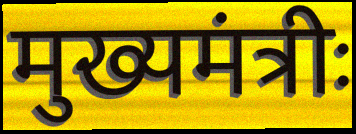
मुख्यमंत्रीः